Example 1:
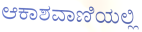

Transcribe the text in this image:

ಆಕಾಶವಾಣಿಯಲ್ಲಿ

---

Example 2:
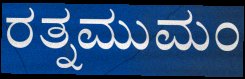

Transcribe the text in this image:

ರತ್ನಮುಮಂ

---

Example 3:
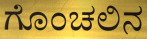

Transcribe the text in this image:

ಗೊಂಚಲಿನ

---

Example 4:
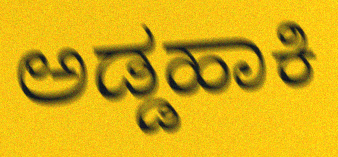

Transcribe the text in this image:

ಅಡ್ಡಹಾಕಿ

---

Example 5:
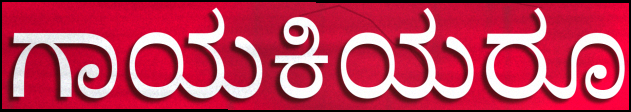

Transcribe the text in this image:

ಗಾಯಕಿಯರೂ